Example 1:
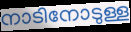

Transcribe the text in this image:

നാടിനോടുള്ള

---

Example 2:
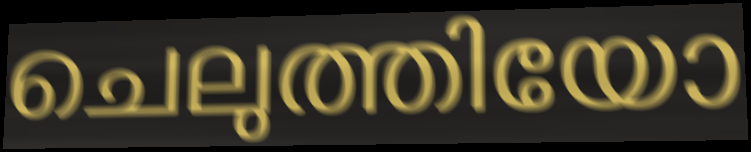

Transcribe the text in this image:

ചെലുത്തിയോ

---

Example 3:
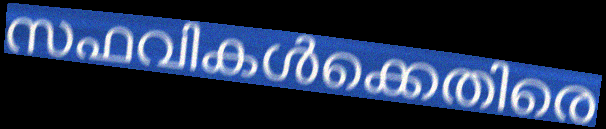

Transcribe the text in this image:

സഫവികൾക്കെതിരെ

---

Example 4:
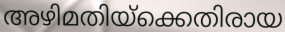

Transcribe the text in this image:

അഴിമതിയ്ക്കെതിരായ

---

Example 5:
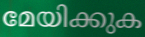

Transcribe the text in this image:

മേയിക്കുക